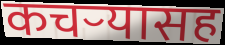
कचऱ्यासह